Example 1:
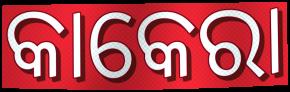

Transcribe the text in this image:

କାକେରା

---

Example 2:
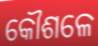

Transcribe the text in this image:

କୌଶଳେ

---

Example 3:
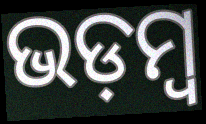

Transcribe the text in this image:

ଭଡ଼ମ୍ବ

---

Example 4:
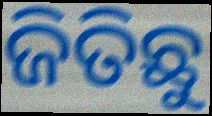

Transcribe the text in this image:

ଜିତିଛୁ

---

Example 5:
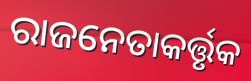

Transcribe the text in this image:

ରାଜନେତାକର୍ତ୍ତୃକ